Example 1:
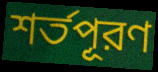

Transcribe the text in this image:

শর্তপূরণ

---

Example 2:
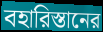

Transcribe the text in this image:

বহারিস্তানের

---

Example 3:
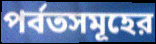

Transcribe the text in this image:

পর্বতসমূহের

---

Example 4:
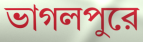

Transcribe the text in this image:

ভাগলপুরে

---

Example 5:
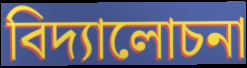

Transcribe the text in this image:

বিদ্যালোচনা